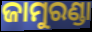
ଜାମୁରଣ୍ଡା